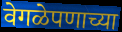
वेगळेपणाच्या